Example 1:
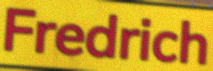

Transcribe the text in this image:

Fredrich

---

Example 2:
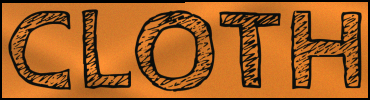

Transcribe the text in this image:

CLOTH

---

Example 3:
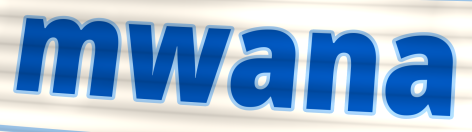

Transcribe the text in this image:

mwana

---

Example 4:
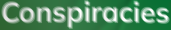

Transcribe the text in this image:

Conspiracies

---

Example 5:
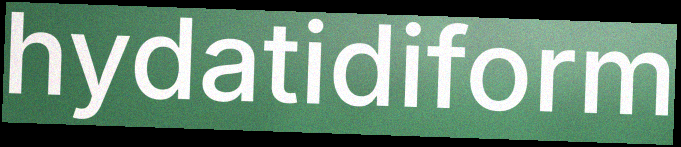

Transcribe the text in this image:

hydatidiform